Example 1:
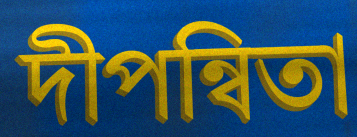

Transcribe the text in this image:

দীপন্বিতা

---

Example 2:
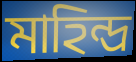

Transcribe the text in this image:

মাহিন্দ্র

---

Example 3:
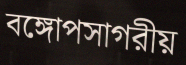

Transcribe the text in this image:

বঙ্গোপসাগরীয়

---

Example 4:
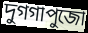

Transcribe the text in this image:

দুগগাপুজো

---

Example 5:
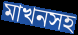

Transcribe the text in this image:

মাখনসহ